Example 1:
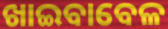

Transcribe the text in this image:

ଖାଇବାବେଳ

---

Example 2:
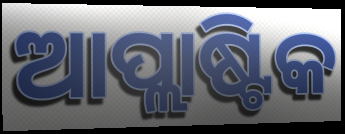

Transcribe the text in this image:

ଆପ୍ଲାଷ୍ଟିକ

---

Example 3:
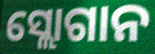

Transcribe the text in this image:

ସ୍ଲୋଗାନ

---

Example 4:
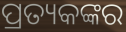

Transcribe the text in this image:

ପ୍ରତ୍ୟକଙ୍କର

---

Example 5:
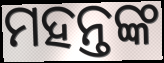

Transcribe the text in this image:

ମହନ୍ତଙ୍କ